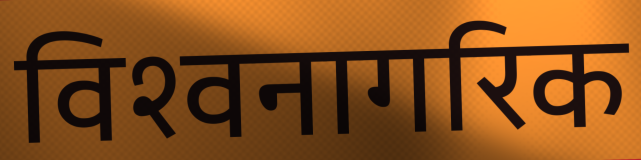
विश्वनागरिक